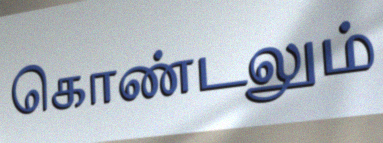
கொண்டலும்